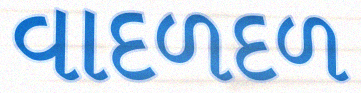
વાદળદળ